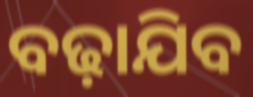
ବଢ଼ାଯିବ